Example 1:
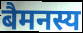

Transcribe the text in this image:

बैमनस्य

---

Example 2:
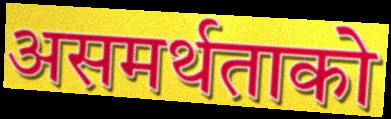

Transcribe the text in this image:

असमर्थताको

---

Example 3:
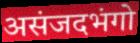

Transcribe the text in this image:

असंजदभंगो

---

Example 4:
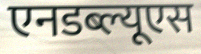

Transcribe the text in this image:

एनडब्ल्यूएस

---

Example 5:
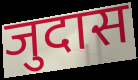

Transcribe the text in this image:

जुदास